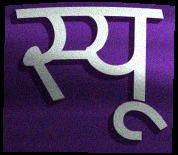
स्यू